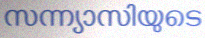
സന്ന്യാസിയുടെ